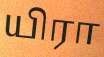
யிரா